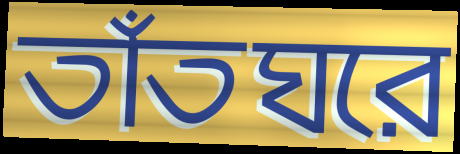
তাঁতঘরে